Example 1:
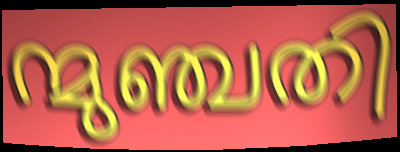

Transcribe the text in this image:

ന്മുഞ്ചതി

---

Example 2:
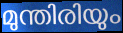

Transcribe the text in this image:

മുന്തിരിയും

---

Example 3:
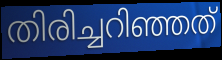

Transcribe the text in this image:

തിരിച്ചറിഞ്ഞത്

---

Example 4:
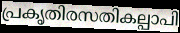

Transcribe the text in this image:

പ്രകൃതിരസതികല്പാപി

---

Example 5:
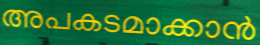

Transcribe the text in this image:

അപകടമാക്കാൻ